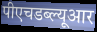
पीएचडब्ल्यूआर